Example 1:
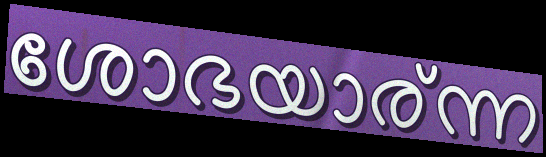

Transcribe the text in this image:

ശോഭയാര്ന്ന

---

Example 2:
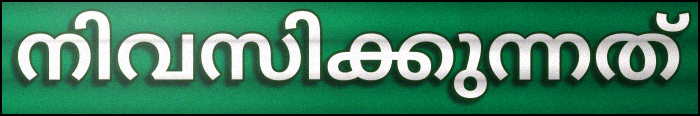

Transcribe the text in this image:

നിവസിക്കുന്നത്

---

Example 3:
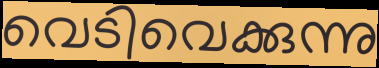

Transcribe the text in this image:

വെടിവെക്കുന്നു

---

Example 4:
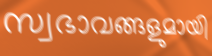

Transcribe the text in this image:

സ്വഭാവങ്ങളുമായി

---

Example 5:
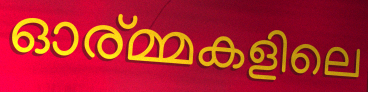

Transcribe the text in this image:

ഓര്മ്മകളിലെ